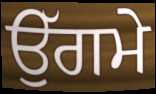
ਉੱਗਮੇ